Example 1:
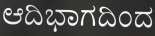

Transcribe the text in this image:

ಆದಿಭಾಗದಿಂದ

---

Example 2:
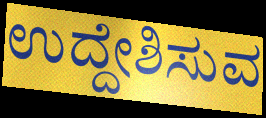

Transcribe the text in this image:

ಉದ್ದೇಶಿಸುವ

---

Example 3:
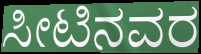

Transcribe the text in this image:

ಸೀಟಿನವರ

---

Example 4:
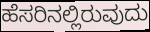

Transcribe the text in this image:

ಹೆಸರಿನಲ್ಲಿರುವುದು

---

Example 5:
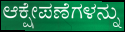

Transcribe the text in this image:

ಆಕ್ಷೇಪಣೆಗಳನ್ನು